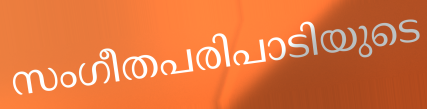
സംഗീതപരിപാടിയുടെ